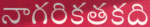
నాగరికతకది